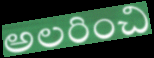
అలరించి